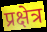
प्रक्षेत्र